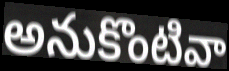
అనుకొంటివా